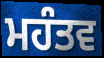
ਮਹੰਤਵ